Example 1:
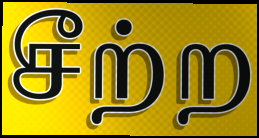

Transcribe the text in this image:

சீற்ற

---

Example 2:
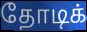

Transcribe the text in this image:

தோடிக்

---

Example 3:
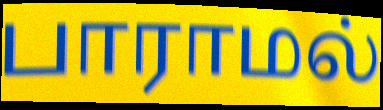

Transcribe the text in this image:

பாராமல்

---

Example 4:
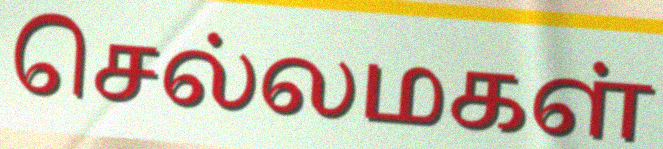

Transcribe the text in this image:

செல்லமகள்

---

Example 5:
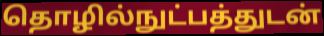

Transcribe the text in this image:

தொழில்நுட்பத்துடன்